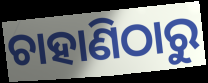
ଚାହାଣିଠାରୁ